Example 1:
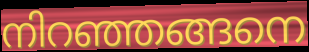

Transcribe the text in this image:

നിറഞ്ഞങ്ങനെ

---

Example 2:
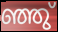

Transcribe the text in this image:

ഞ്ഞു്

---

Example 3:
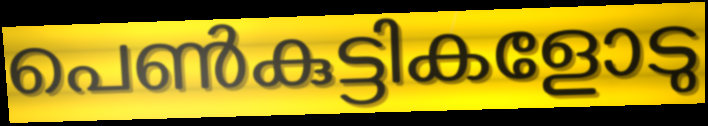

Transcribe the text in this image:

പെൺകുട്ടികളോടു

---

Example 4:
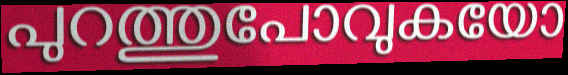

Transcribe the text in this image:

പുറത്തുപോവുകയോ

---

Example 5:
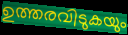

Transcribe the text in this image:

ഉത്തരവിടുകയും